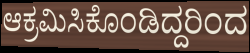
ಆಕ್ರಮಿಸಿಕೊಂಡಿದ್ದರಿಂದ